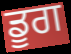
ਡੂਗ